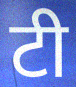
टी